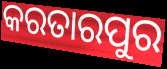
କରତାରପୁର